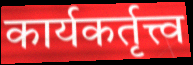
कार्यकर्तृत्त्व